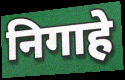
निगाहे